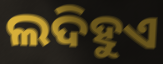
ଲଦିହୁଏ